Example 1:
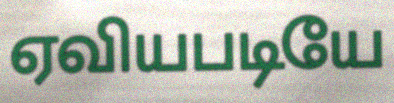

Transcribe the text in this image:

ஏவியபடியே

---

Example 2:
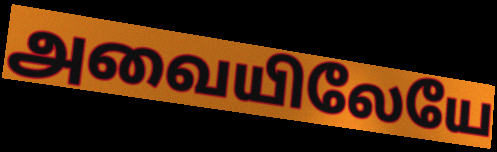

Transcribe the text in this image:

அவையிலேயே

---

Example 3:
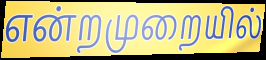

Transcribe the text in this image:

என்றமுறையில்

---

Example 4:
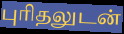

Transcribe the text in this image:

புரிதலுடன்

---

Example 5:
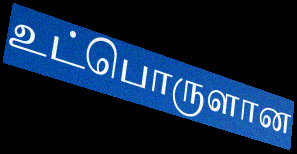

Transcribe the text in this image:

உட்பொருளான